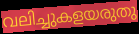
വലിച്ചുകളയരുതു